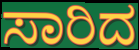
ಸಾರಿದ